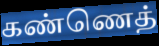
கண்ணெத்